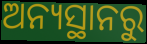
ଅନ୍ୟସ୍ଥାନରୁ